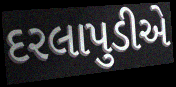
દરલાપુડીએ